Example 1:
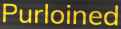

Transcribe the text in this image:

Purloined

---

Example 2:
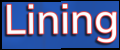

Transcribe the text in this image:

Lining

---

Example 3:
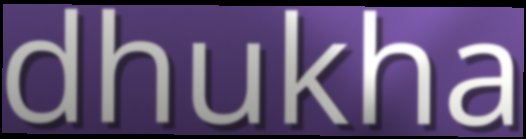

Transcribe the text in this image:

dhukha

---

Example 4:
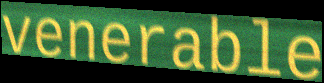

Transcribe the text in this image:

venerable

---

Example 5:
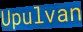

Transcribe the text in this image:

Upulvan